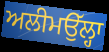
ਅਲੀਮਉੱਲ੍ਹਾ